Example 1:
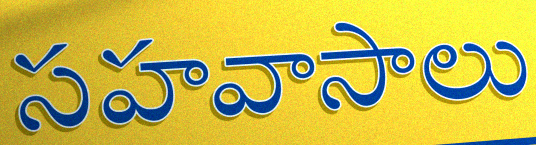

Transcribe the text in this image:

సహవాసాలు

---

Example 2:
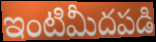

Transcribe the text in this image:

ఇంటిమీదపడి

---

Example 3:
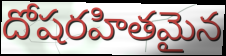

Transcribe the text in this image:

దోషరహితమైన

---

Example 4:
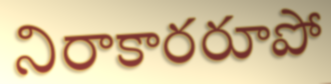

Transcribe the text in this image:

నిరాకారరూపో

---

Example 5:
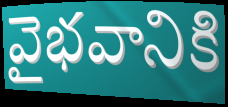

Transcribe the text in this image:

వైభవానికి